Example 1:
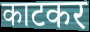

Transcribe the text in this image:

काटकर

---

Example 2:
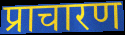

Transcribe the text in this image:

प्राचारण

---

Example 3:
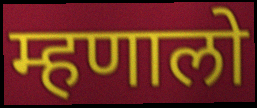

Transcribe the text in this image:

म्हणालो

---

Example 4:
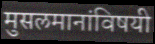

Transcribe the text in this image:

मुसलमानांविषयी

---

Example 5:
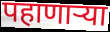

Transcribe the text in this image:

पहाणार्‍या